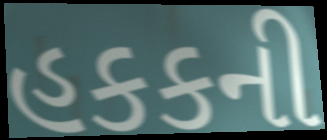
હકકની